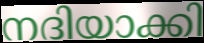
നദിയാക്കി